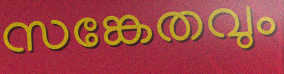
സങ്കേതവും